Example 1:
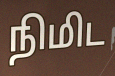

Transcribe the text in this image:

நிமிட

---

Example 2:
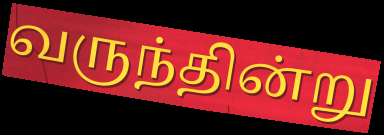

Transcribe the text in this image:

வருந்தின்று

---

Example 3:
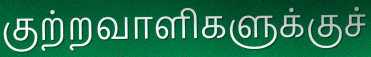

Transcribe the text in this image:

குற்றவாளிகளுக்குச்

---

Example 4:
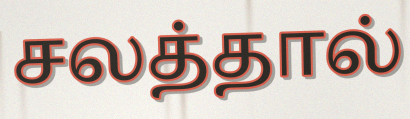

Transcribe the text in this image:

சலத்தால்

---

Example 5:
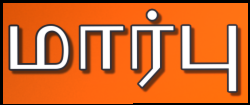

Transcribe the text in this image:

மார்பு